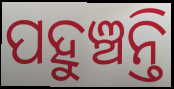
ପହୁଞ୍ଚନ୍ତି